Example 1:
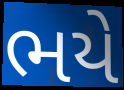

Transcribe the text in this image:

ભયે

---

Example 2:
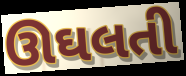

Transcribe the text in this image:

ઊઘલતી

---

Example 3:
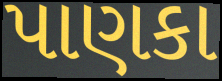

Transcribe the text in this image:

પાણકા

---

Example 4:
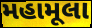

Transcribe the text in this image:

મહામૂલા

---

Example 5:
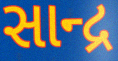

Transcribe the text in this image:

સાન્દ્ર